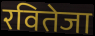
रवितेजा